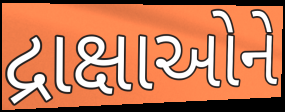
દ્રાક્ષાઓને